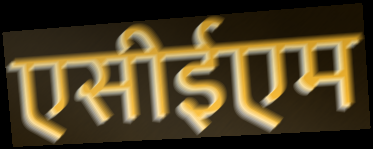
एसीईएम